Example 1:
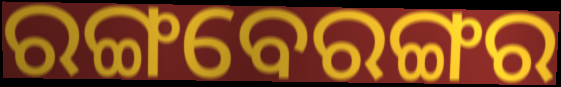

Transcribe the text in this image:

ରଙ୍ଗବେରଙ୍ଗର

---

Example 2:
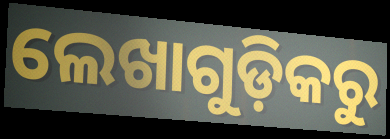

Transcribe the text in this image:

ଲେଖାଗୁଡ଼ିକରୁ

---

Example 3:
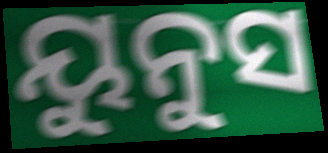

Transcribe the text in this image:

ୟୁନୁସ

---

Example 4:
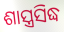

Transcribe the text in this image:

ଶାସ୍ତ୍ରସିଦ୍ଧ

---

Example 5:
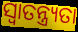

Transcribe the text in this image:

ସ୍ୱାତନ୍ତ୍ର୍ୟତା